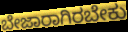
ಬೇಜಾರಾಗಿರಬೇಕು